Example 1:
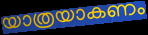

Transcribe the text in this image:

യാത്രയാകണം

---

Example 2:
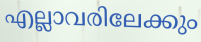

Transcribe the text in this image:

എല്ലാവരിലേക്കും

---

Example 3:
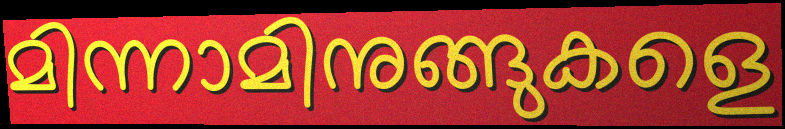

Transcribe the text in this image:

മിന്നാമിനുങ്ങുകളെ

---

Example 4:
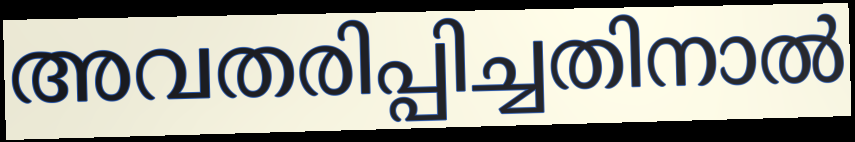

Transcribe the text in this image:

അവതരിപ്പിച്ചതിനാൽ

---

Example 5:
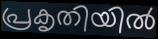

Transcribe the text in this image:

പ്രകൃതിയിൽ